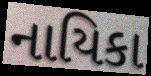
નાયિકા